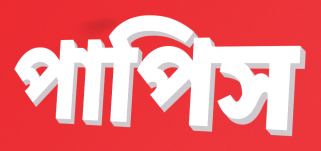
পাপিস